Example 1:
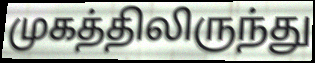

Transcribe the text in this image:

முகத்திலிருந்து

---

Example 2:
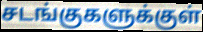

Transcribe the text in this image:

சடங்குகளுக்குள்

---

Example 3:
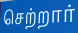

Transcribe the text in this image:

செற்றார்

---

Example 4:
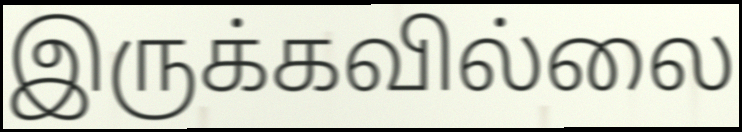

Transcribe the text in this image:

இருக்கவில்லை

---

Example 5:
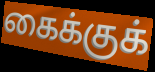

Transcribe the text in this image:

கைக்குக்